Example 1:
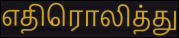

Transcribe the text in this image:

எதிரொலித்து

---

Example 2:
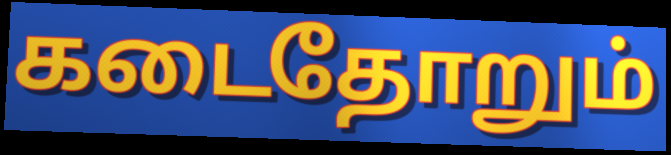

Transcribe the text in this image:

கடைதோறும்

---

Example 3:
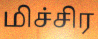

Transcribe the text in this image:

மிச்சிர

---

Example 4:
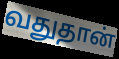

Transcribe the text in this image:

வதுதான்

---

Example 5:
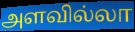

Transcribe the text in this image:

அளவில்லா